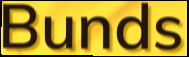
Bunds